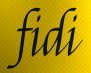
fidi